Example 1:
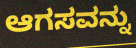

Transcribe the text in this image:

ಆಗಸವನ್ನು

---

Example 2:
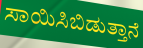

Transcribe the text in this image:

ಸಾಯಿಸಿಬಿಡುತ್ತಾನೆ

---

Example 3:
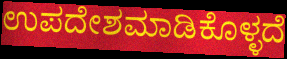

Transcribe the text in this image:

ಉಪದೇಶಮಾಡಿಕೊಳ್ಳದೆ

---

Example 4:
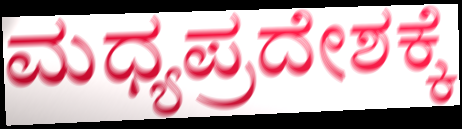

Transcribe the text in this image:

ಮಧ್ಯಪ್ರದೇಶಕ್ಕೆ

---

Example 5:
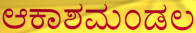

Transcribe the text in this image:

ಆಕಾಶಮಂಡಲ